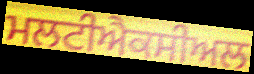
ਮਲਟੀਐਕਸੀਅਲ